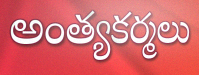
అంత్యకర్మలు